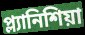
প্ল্যানিশিয়া